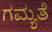
ಗಮ್ಯತೆ